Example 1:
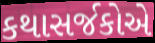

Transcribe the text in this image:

કથાસર્જકોએ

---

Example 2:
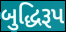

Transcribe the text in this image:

બુદ્ધિરૂપ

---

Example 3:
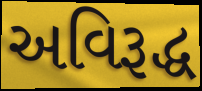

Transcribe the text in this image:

અવિરૂદ્ધ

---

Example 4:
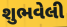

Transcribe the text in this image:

શુભવેલી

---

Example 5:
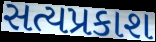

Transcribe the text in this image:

સત્યપ્રકાશ